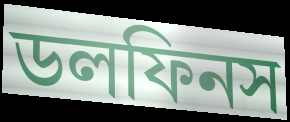
ডলফিনস